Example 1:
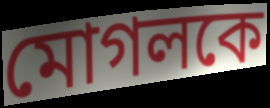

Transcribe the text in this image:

মোগলকে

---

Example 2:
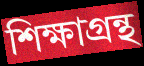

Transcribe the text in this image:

শিক্ষাগ্রন্থ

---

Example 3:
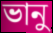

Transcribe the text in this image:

ভানু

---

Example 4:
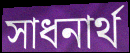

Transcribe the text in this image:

সাধনার্থ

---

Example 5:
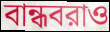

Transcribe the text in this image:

বান্ধবরাও